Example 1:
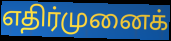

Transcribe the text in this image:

எதிர்முனைக்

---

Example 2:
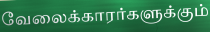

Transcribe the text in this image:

வேலைக்காரர்களுக்கும்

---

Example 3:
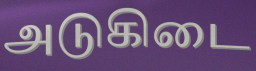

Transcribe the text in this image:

அடுகிடை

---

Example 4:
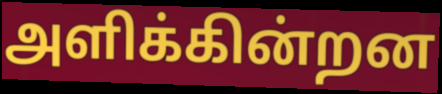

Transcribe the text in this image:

அளிக்கின்றன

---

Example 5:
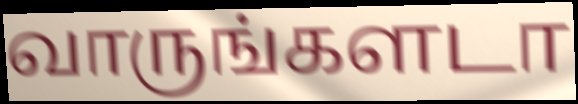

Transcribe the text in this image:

வாருங்களடா